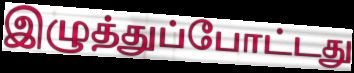
இழுத்துப்போட்டது